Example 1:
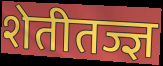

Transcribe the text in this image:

शेतीतज्ज्ञ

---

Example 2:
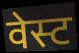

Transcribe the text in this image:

वेस्ट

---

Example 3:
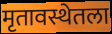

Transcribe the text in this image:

मृतावस्थेतला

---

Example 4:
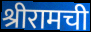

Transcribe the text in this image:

श्रीरामची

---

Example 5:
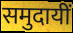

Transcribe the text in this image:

समुदायीं